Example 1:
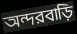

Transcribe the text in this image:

অন্দরবাড়ি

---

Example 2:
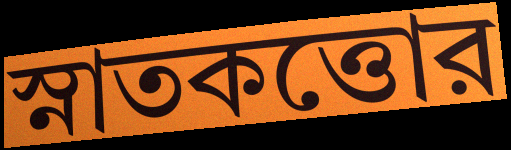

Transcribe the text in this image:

স্নাতকত্তোর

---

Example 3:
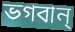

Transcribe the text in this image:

ভগবান্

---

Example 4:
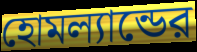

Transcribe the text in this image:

হোমল্যান্ডের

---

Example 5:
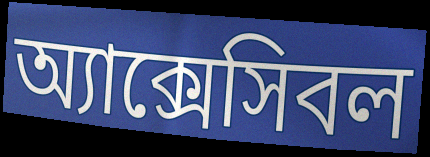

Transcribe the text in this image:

অ্যাক্সেসিবল